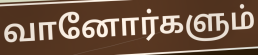
வானோர்களும்